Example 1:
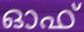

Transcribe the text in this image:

ഓഫ്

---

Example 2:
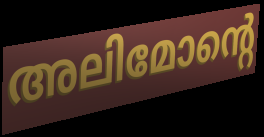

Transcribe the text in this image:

അലിമോന്റെ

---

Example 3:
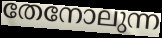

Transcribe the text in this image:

തേനോലുന്ന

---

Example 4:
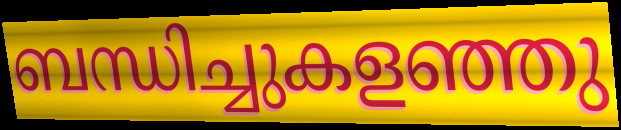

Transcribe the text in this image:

ബന്ധിച്ചുകളഞ്ഞു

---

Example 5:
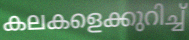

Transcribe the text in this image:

കലകളെക്കുറിച്ച്